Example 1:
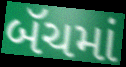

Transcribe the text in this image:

બૅચમાં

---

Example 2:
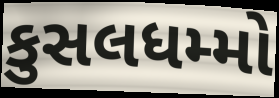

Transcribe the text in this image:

કુસલધમ્મો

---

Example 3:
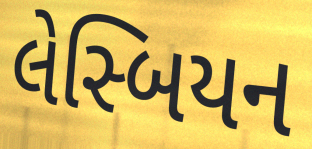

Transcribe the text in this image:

લેસ્બિયન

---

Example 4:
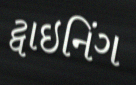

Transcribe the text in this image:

ટ્વાઇનિંગ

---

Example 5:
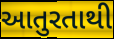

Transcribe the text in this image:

આતુરતાથી